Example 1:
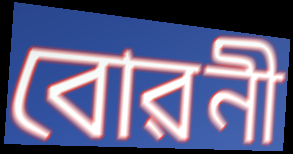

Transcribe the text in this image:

বোৱনী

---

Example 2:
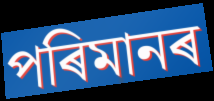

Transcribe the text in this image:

পৰিমানৰ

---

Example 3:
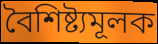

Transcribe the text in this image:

বৈশিষ্ট্যমূলক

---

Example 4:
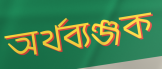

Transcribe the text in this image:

অৰ্থব্যঞ্জক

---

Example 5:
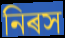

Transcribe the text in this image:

নিৰস